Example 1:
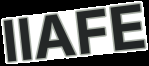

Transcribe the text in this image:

IIAFE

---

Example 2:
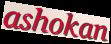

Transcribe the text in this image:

ashokan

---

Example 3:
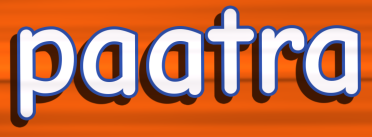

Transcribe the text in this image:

paatra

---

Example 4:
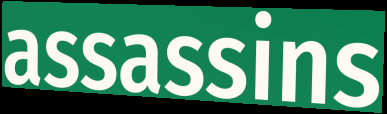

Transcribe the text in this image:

assassins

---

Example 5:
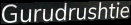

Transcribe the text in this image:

Gurudrushtie